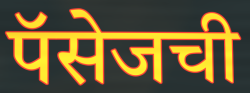
पॅसेजची